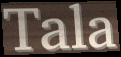
Tala